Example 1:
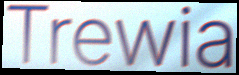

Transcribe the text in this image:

Trewia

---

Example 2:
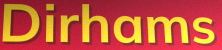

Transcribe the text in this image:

Dirhams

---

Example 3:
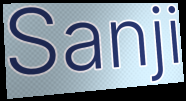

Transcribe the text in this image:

Sanji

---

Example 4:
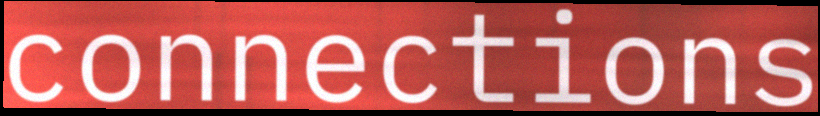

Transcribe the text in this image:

connections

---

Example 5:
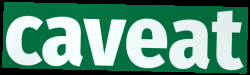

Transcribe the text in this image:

caveat